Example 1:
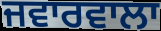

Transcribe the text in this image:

ਜਵਾਰਵਾਲਾ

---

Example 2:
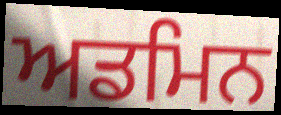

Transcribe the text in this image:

ਅਡਮਿਨ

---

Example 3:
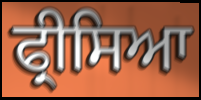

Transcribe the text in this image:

ਫ੍ਰੀਸਿਆ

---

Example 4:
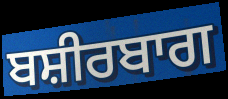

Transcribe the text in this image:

ਬਸ਼ੀਰਬਾਗ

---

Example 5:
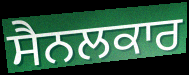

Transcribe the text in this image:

ਸੈਨਲਕਾਰ